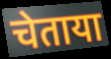
चेताया